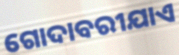
ଗୋଦାବରୀଯାଏ